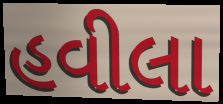
હવીલા